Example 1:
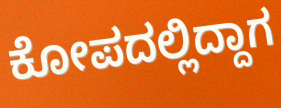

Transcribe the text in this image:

ಕೋಪದಲ್ಲಿದ್ದಾಗ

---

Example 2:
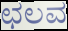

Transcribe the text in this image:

ಛಲವ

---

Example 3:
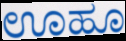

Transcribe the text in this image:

ಊಹೂ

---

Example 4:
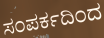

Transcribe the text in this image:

ಸಂಪರ್ಕದಿಂದ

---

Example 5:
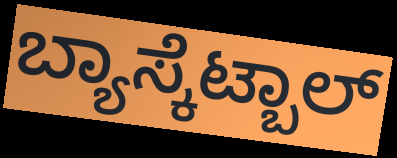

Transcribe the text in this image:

ಬ್ಯಾಸ್ಕೆಟ್ಬಾಲ್